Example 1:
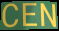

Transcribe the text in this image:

CEN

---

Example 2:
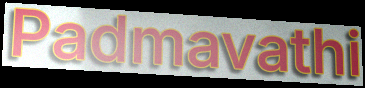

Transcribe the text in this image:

Padmavathi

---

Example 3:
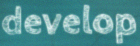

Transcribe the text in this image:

develop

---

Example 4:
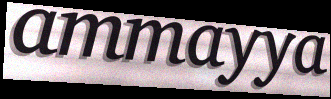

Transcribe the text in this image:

ammayya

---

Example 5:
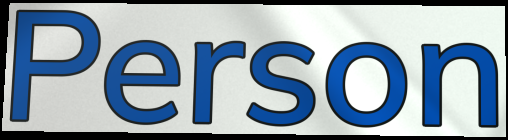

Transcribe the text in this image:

Person